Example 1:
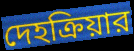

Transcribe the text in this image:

দেহক্রিয়ার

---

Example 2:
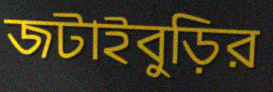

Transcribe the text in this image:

জটাইবুড়ির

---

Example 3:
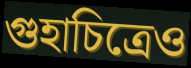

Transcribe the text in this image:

গুহাচিত্রেও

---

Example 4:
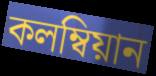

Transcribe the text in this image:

কলম্বিয়ান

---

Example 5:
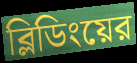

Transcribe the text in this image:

ব্লিডিংয়ের